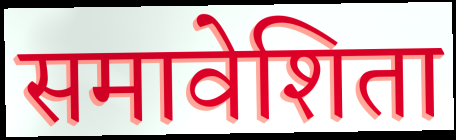
समावेशिता